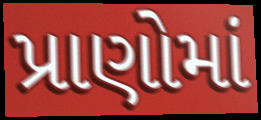
પ્રાણોમાં